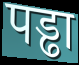
पड्ढा